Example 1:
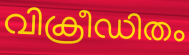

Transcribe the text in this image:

വിക്രീഡിതം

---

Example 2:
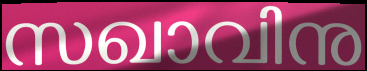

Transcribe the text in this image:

സഖാവിനു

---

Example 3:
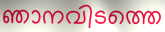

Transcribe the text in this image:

ഞാനവിടത്തെ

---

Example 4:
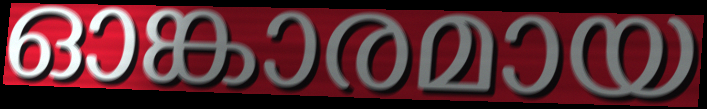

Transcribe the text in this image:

ഓങ്കാരമായ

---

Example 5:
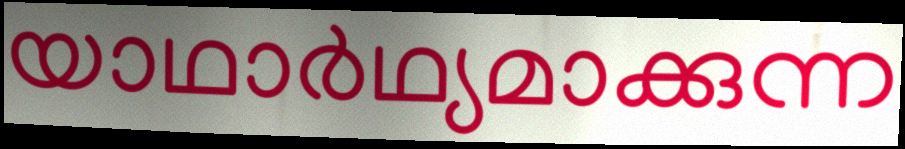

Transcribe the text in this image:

യാഥാർഥ്യമാക്കുന്ന